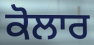
ਕੋਲਾਰ